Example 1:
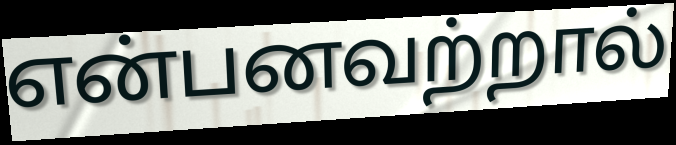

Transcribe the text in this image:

என்பனவற்றால்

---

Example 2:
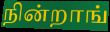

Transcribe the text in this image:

நின்றாங்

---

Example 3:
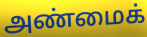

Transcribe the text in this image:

அண்மைக்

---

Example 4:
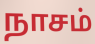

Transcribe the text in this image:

நாசம்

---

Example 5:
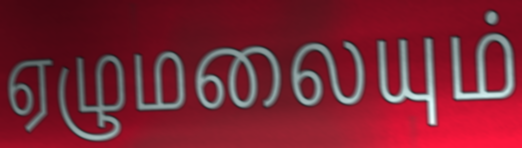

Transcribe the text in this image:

ஏழுமலையும்